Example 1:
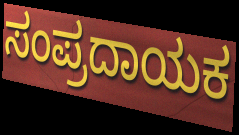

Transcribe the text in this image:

ಸಂಪ್ರದಾಯಕ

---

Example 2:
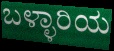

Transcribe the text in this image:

ಬಳ್ಳಾರಿಯ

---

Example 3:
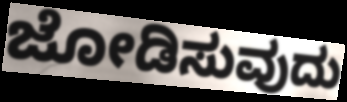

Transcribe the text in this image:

ಜೋಡಿಸುವುದು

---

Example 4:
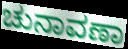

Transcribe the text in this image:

ಚುನಾವಣಾ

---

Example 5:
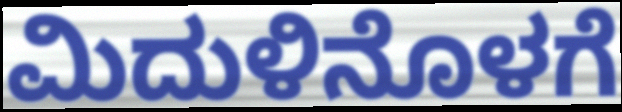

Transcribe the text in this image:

ಮಿದುಳಿನೊಳಗೆ